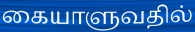
கையாளுவதில்